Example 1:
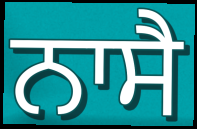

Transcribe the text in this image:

ਨਾਸੈ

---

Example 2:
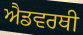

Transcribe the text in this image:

ਐਡਵਰਥੀ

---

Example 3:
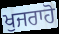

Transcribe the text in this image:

ਖੁਜਰਾਹੋ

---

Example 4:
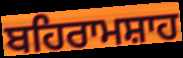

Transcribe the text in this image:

ਬਹਿਰਾਮਸ਼ਾਹ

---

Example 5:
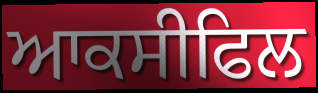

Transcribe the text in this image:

ਆਕਸੀਫਿਲ